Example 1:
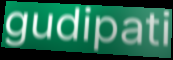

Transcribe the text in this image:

gudipati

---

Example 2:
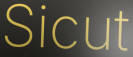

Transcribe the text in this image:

Sicut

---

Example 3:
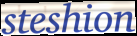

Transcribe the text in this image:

steshion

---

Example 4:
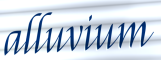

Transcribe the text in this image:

alluvium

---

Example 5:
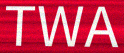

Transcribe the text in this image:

TWA